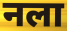
नला